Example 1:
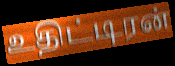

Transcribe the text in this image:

உதிட்டிரன்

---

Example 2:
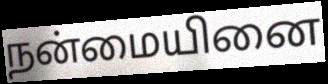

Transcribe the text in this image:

நன்மையினை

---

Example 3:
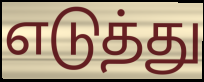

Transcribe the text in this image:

எடுத்து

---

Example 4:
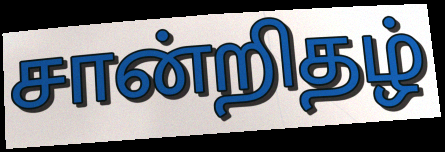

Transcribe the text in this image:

சான்றிதழ்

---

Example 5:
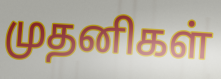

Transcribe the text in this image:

முதனிகள்